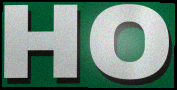
HO